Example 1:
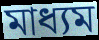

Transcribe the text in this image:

মাধ্যম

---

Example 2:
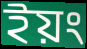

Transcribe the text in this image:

ইয়ং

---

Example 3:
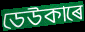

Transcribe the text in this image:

ডেউকাৰে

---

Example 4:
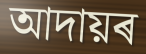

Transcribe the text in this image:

আদায়ৰ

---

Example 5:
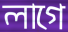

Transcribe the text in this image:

লাগে